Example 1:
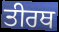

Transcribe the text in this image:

ਤੀਰਥ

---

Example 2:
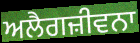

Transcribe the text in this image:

ਅਲੈਗਜ਼ੀਵਨਾ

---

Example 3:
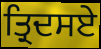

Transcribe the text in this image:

ਤ੍ਰਿਦਸਏ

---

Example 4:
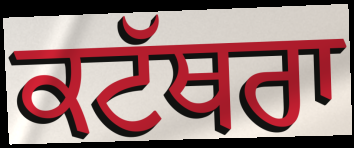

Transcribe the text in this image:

ਕਟੱਥਰਾ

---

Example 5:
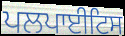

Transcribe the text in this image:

ਪਲਪਾਈਟਿਸ